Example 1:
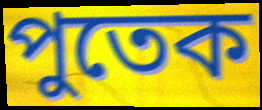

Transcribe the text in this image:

পুতেক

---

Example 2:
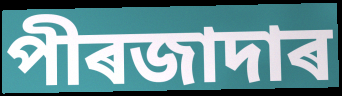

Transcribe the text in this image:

পীৰজাদাৰ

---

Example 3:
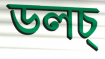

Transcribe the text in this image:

ডলচ্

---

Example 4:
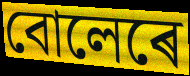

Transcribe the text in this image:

বোলেৰে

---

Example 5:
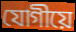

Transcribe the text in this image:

যোগীয়ে